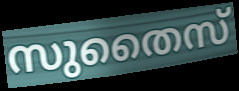
സുതൈസ്